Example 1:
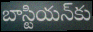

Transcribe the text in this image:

బాస్టియన్‌కు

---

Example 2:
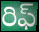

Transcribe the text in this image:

రిఫ్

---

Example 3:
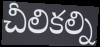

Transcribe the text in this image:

చీలికల్ని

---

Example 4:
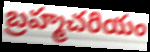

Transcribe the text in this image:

బ్రహ్మచరియం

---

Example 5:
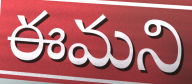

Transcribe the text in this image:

ఈమని